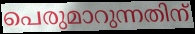
പെരുമാറുന്നതിന്